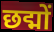
छद्मों